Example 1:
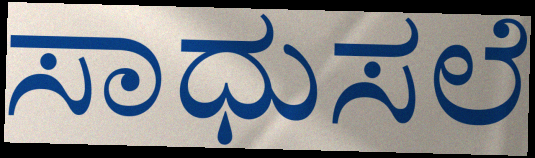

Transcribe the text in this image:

ಸಾಧುಸಲೆ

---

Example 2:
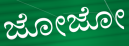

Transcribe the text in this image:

ಜೋಜೋ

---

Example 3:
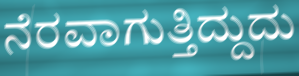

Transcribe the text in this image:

ನೆರವಾಗುತ್ತಿದ್ದುದು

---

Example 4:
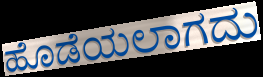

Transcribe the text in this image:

ಹೊಡೆಯಲಾಗದು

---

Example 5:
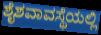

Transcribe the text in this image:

ಶೈಶವಾವಸ್ಥೆಯಲ್ಲಿ